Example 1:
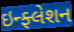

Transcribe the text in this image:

ઇન્ફ્લેશન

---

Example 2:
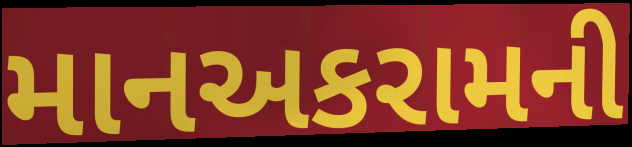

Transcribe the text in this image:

માનઅકરામની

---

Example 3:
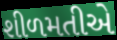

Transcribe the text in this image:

શીળમતીએ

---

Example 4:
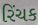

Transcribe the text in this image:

રિંચક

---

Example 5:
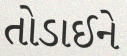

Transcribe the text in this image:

તોડાઈને